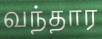
வந்தார